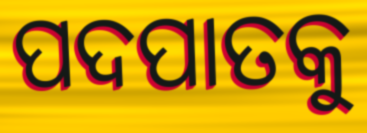
ପଦପାତକୁ